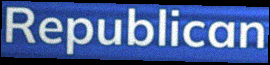
Republican